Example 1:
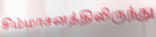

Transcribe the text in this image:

சிம்மாசனத்திலிருந்து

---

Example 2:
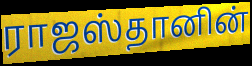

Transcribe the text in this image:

ராஜஸ்தானின்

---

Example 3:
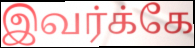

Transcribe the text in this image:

இவர்க்கே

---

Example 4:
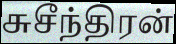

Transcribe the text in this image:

சுசீந்திரன்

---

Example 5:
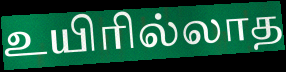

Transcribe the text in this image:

உயிரில்லாத